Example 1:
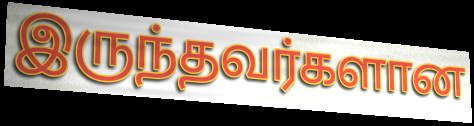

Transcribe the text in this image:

இருந்தவர்களான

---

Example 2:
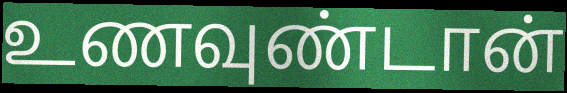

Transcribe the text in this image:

உணவுண்டான்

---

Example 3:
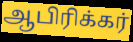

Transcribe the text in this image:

ஆபிரிக்கர்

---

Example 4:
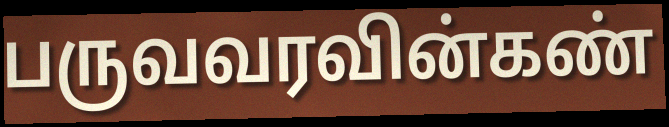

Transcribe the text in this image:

பருவவரவின்கண்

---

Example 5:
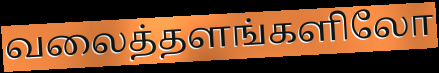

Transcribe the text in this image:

வலைத்தளங்களிலோ